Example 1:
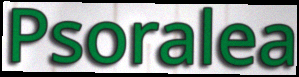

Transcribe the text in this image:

Psoralea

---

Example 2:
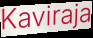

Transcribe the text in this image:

Kaviraja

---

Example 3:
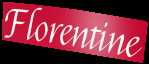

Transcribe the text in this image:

Florentine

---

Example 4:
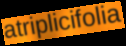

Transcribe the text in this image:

atriplicifolia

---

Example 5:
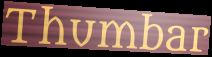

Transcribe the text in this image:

Thumbar